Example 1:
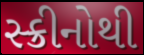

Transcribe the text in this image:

સ્ક્રીનોથી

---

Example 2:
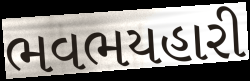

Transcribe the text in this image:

ભવભયહારી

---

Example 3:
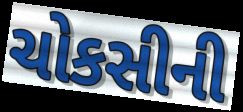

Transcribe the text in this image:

ચોકસીની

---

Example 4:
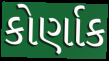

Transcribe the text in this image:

કોર્ણાક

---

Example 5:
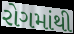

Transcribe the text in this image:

રોગમાંથી